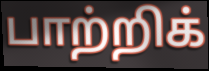
பாற்றிக்